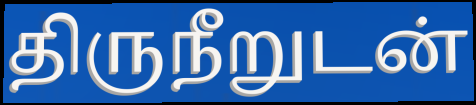
திருநீறுடன்